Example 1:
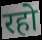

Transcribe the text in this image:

रहो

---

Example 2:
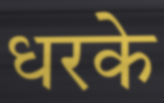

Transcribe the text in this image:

धरके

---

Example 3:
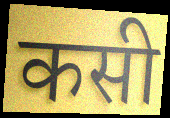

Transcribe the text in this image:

कसी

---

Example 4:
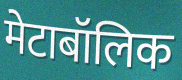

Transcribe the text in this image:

मेटाबॉलिक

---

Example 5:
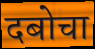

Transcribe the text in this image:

दबोचा